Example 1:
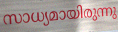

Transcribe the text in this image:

സാധ്യമായിരുന്നു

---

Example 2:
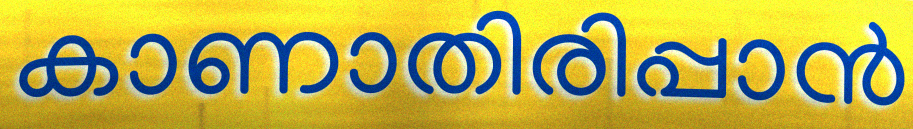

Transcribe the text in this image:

കാണാതിരിപ്പാൻ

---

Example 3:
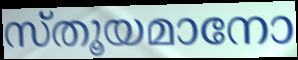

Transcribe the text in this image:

സ്തൂയമാനോ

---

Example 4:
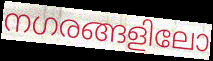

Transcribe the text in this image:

നഗരങ്ങളിലോ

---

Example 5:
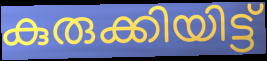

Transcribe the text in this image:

കുരുക്കിയിട്ട്